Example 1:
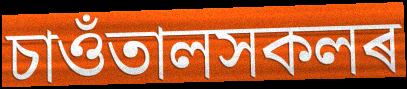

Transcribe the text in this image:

চাওঁতালসকলৰ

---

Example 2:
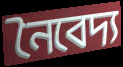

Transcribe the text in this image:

নৈবেদ্য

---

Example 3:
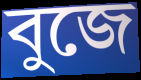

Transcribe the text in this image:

বুজে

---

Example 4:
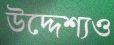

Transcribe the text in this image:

উদ্দেশ্যও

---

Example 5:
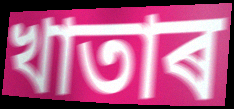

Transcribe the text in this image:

খাতাৰ